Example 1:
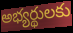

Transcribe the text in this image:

అభ్యర్థులకు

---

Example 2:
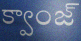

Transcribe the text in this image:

క్వాంజ్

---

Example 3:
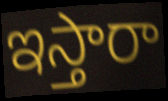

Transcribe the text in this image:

ఇస్తారా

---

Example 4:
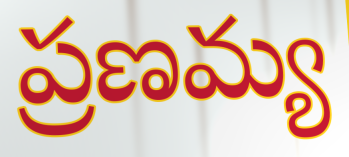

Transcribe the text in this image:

ప్రణమ్య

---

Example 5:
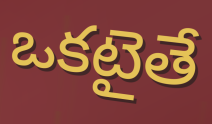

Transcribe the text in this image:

ఒకటైతే